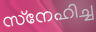
സ്‌നേഹിച്ച